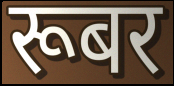
रूबर